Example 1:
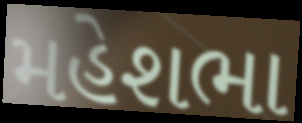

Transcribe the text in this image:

મહેશભા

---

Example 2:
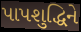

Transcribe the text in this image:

પાપશુદ્ધિને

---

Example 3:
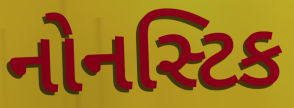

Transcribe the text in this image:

નોનસ્ટિક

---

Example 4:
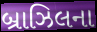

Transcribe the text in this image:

બ્રાઝિલના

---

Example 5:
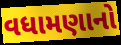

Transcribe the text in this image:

વધામણાનો